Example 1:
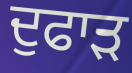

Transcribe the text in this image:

ਦੁਫਾੜ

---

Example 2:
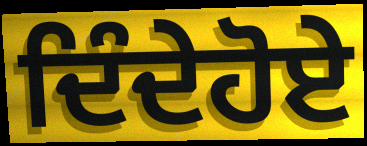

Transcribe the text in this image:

ਦਿੰਦੇਹੋਏ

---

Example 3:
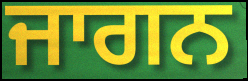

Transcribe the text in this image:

ਜਾਗਨ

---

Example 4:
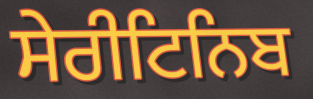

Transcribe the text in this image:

ਸੇਰੀਟਿਨਿਬ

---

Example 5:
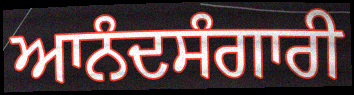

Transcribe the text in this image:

ਆਨੰਦਸੰਗਾਰੀ